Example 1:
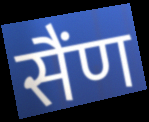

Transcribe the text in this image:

सैंण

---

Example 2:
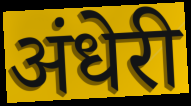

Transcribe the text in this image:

अंधेरी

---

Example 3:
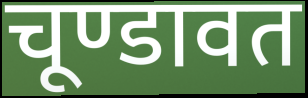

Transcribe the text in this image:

चूण्डावत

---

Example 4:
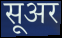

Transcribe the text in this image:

सूअर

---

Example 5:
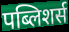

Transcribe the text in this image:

पब्लिशर्स